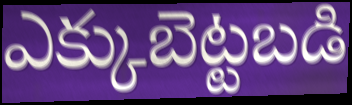
ఎక్కుబెట్టబడి